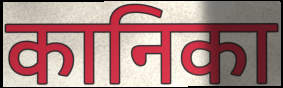
कानिका